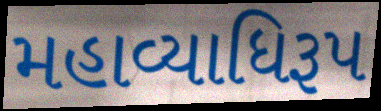
મહાવ્યાધિરૂપ